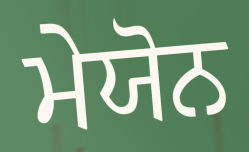
ਮੇਯੋਨ